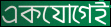
একযোগেই